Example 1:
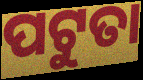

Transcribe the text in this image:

ପଟୁତା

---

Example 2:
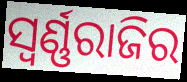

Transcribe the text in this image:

ସ୍ଵର୍ଣ୍ଣରାଜିର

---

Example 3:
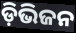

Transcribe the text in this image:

ଡ଼ିଭିଜନ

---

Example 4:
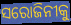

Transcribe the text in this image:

ସରୋଜିନୀକୁ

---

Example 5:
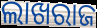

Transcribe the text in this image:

ଲାଖରାଜ